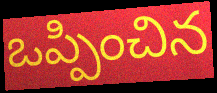
ఒప్పించిన